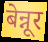
बेन्नूर